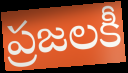
ప్రజలకీ